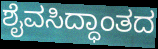
ಶೈವಸಿದ್ಧಾಂತದ